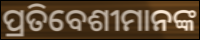
ପ୍ରତିବେଶୀମାନଙ୍କ